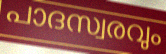
പാദസ്വരവും